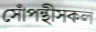
সোঁপন্থীসকল